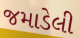
જમાડેલી